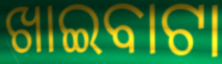
ଖାଇବାଟା